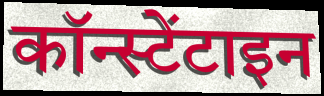
कॉन्स्टेंटाइन